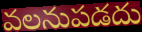
వలనుపడదు